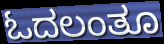
ಓದಲಂತೂ